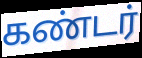
கண்டர்